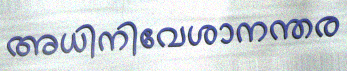
അധിനിവേശാനന്തര